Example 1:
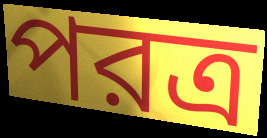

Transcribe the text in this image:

পরত্র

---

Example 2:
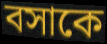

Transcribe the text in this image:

বসাকে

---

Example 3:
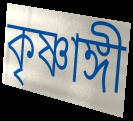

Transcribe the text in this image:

কৃষ্ণাঙ্গী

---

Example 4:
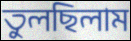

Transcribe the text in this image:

তুলছিলাম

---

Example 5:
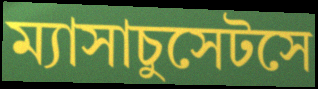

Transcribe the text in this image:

ম্যাসাচুসেটসে